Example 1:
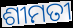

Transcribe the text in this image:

ଶୀମତୀ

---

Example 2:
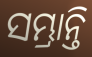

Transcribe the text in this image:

ସମ୍ଭ୍ରାନ୍ତି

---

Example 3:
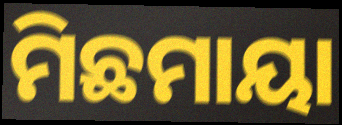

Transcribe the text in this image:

ମିଛମାୟା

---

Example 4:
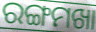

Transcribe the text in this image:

ରଙ୍ଗମଖା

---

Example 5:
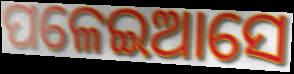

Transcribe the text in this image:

ପଳେଇଆସେ